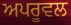
ਅਪਰੂਵਲ